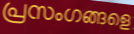
പ്രസംഗങ്ങളെ